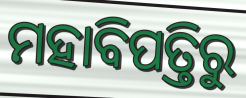
ମହାବିପତ୍ତିରୁ